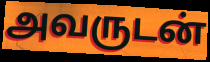
அவருடன்